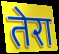
तेरा